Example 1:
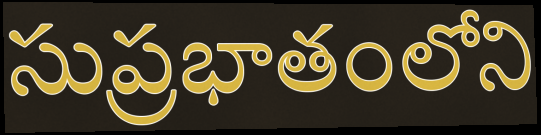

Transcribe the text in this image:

సుప్రభాతంలోని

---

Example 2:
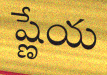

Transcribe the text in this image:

ష్ణేయ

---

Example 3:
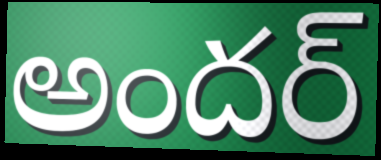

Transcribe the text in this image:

అందర్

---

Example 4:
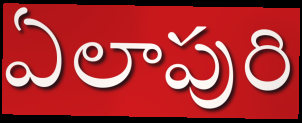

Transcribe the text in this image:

ఏలాపురి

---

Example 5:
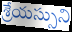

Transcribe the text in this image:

శ్రేయస్సుని